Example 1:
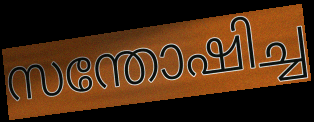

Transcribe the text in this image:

സന്തോഷിച്ച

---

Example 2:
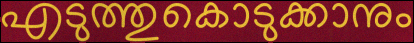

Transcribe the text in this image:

എടുത്തുകൊടുക്കാനും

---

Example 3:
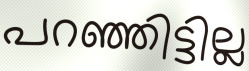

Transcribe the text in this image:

പറഞ്ഞിട്ടില്ല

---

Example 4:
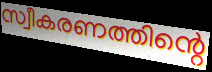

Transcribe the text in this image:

സ്വീകരണത്തിന്റെ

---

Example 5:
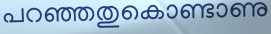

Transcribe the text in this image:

പറഞ്ഞതുകൊണ്ടാണു